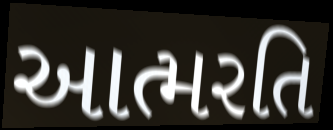
આત્મરતિ